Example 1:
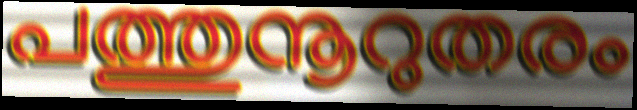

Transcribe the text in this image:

പത്തുനൂറുതരം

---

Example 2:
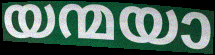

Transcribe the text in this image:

യന്മയാ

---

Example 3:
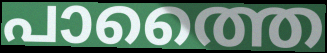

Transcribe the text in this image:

പാത്തൈ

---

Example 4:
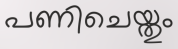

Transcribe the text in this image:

പണിചെയ്തും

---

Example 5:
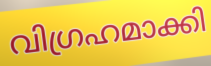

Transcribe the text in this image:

വിഗ്രഹമാക്കി